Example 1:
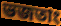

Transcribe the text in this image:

ভজতাং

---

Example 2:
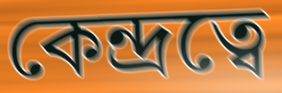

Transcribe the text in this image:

কেন্দ্রত্বে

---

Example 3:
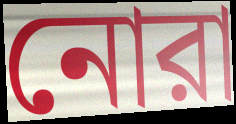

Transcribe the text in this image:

নোরা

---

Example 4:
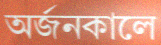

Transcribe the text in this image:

অর্জনকালে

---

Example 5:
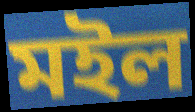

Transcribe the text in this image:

মইল